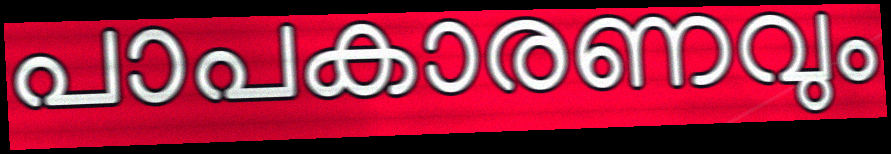
പാപകാരണവും